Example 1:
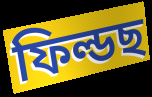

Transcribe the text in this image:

ফিল্ডছ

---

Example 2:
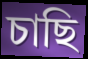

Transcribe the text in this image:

চাছি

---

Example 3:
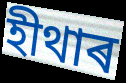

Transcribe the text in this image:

হীথাৰ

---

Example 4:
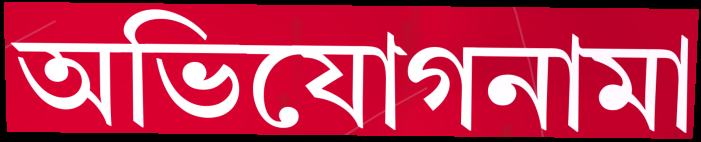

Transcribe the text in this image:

অভিযোগনামা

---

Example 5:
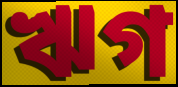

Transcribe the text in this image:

ঋগ